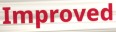
Improved